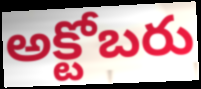
అక్టోబరు